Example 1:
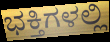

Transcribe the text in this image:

ಭಕ್ತಿಗಳಲ್ಲಿ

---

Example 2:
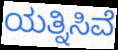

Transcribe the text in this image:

ಯತ್ನಿಸಿವೆ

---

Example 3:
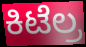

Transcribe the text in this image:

ಕಿಟೆಲ್ರ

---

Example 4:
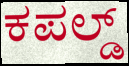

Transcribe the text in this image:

ಕಪಲ್ಡ್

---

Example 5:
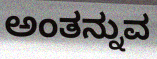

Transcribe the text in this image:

ಅಂತನ್ನುವ